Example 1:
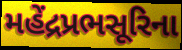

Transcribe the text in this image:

મહેંદ્રપ્રભસૂરિના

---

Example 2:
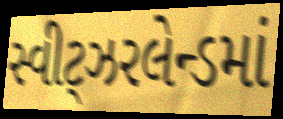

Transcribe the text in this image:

સ્વીટ્ઝરલેન્ડમાં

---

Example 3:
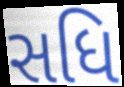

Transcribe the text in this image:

સધિ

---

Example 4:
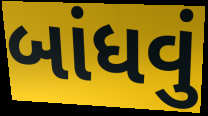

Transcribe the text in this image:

બાંધવું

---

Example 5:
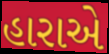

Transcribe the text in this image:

હારાએ